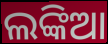
ଲଙ୍କିଆ